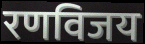
रणविजय